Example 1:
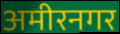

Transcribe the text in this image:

अमीरनगर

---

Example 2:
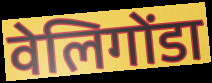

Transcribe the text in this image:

वेलिगोंडा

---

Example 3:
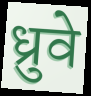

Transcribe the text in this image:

ध्रुवे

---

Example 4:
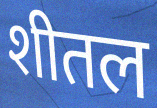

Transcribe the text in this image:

शीतल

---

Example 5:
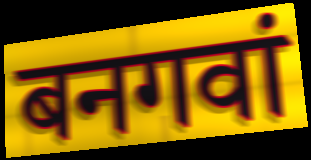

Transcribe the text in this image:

बनगवां